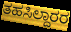
ತಹಸಿಲ್ದಾರರ